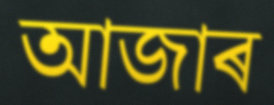
আজাৰ